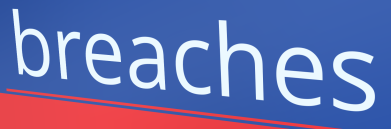
breaches